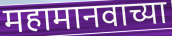
महामानवाच्या